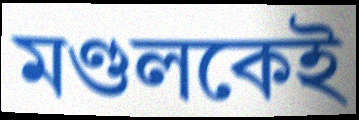
মণ্ডলকেই